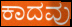
ಕಾದವು